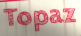
Topaz